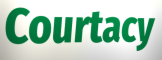
Courtacy